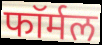
फॉर्मल